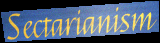
Sectarianism